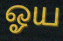
ஓய